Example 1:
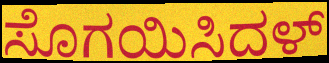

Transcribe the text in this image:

ಸೊಗಯಿಸಿದಳ್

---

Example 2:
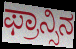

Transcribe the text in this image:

ಫ್ರಾನ್ಸಿನ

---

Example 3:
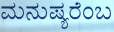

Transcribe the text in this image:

ಮನುಷ್ಯರೆಂಬ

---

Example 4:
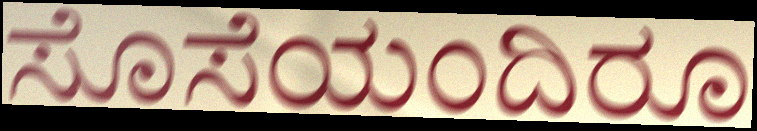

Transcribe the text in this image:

ಸೊಸೆಯಂದಿರೂ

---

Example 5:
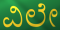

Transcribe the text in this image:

ವಿಲೇ